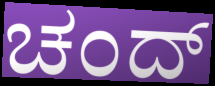
ಚಂದ್